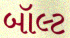
બૉલ્ટ